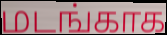
மடங்காக